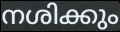
നശിക്കും